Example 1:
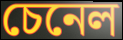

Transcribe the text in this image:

চেনেল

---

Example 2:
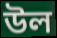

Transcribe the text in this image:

উল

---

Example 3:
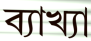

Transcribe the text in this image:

ব্যাখ্যা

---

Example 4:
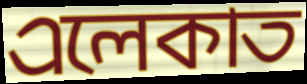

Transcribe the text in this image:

এলেকাত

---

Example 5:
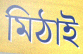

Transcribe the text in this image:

মিঠাই